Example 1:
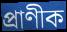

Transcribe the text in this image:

প্ৰাণীক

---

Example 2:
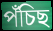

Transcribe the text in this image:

পঁচিছ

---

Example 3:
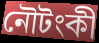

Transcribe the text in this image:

নৌটংকী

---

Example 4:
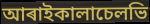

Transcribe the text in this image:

আৰাইকালাচেলভি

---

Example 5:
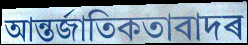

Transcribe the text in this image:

আন্তৰ্জাতিকতাবাদৰ